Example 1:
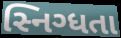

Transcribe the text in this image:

સ્નિગ્ધતા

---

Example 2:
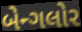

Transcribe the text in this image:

બેન્ગલોર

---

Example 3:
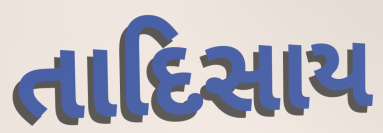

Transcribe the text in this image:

તાદિસાય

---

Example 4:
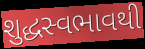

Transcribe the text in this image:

શુદ્ધસ્વભાવથી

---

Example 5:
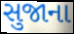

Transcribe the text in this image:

સુજાના